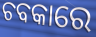
ଚବକାରେ